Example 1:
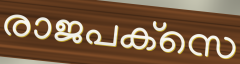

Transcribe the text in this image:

രാജപക്‌സെ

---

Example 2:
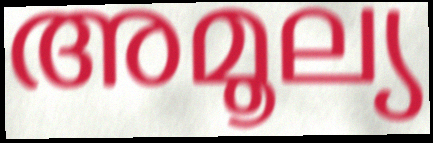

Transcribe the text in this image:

അമൂല്യ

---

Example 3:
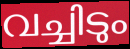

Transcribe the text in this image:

വച്ചിടും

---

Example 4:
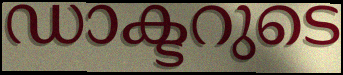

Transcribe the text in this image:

ഡാക്ടറുടെ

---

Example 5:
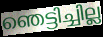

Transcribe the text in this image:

ഞെട്ടിച്ചില്ല